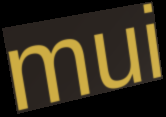
mui